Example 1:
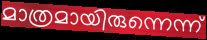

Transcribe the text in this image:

മാത്രമായിരുന്നെന്ന്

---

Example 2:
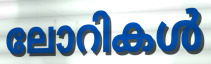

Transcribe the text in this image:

ലോറികൾ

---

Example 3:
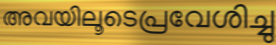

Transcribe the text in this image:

അവയിലൂടെപ്രവേശിച്ചു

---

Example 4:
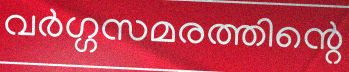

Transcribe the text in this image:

വർഗ്ഗസമരത്തിന്റെ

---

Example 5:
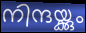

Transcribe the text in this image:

നിന്ദയ്ക്കും